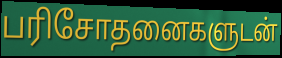
பரிசோதனைகளுடன்